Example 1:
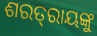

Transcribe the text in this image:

ଶରତ୍‌ରାୟଙ୍କୁ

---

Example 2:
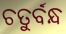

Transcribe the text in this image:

ଚତୁର୍ବନ୍ଧ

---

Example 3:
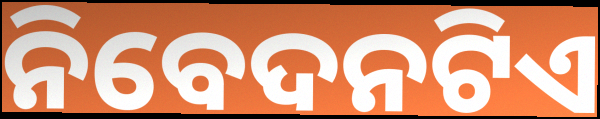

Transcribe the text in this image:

ନିବେଦନଟିଏ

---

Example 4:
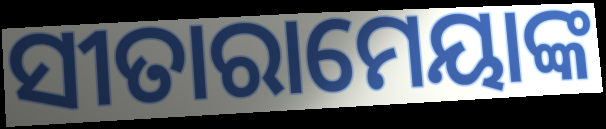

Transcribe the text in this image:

ସୀତାରାମେୟାଙ୍କ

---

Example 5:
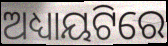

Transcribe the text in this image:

ଅଧ୍ୟାୟଟିରେ